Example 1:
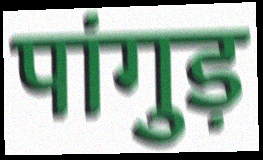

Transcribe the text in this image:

पांगुड़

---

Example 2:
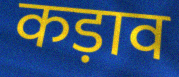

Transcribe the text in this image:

कड़ाव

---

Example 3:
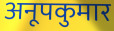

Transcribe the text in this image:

अनूपकुमार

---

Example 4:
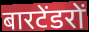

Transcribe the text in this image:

बारटेंडरों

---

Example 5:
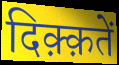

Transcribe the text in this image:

दिक़्क़तें